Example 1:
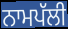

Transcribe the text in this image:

ਨਾਮਪੱਲੀ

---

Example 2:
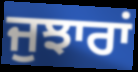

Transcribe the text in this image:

ਜੁਝਾਰਾਂ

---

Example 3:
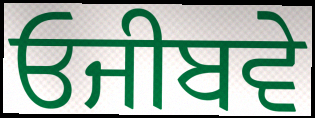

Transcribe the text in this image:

ਓਜੀਬਵੇ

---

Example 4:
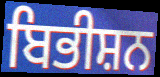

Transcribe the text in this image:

ਬਿਭੀਸ਼ਨ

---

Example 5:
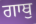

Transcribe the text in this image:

ਗਾਥੁ